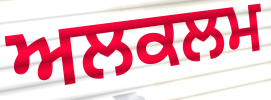
ਅਲਕਲਮ